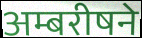
अम्बरीषने